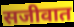
सजीवात